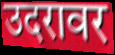
उदरावर